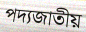
পদ্যজাতীয়